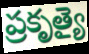
ప్రకృత్యై